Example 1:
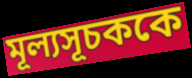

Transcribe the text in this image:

মূল্যসূচককে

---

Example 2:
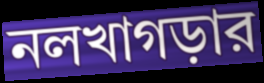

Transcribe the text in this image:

নলখাগড়ার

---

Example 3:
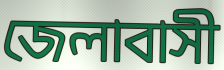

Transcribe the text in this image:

জেলাবাসী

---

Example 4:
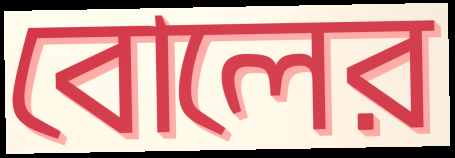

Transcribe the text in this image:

বোলের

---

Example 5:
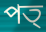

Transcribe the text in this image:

পত্